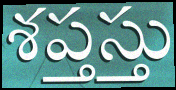
శప్తస్తు